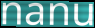
nanu